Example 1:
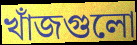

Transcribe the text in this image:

খাঁজগুলো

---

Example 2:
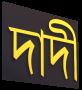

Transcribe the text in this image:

দাদী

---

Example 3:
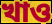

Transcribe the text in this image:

খাও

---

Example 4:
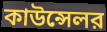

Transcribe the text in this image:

কাউন্সেলর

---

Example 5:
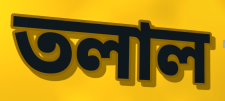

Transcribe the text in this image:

তলাল